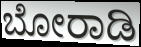
ಬೋರಾಡಿ